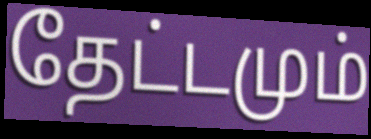
தேட்டமும்